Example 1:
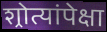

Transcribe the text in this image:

श्रोत्यांपेक्षा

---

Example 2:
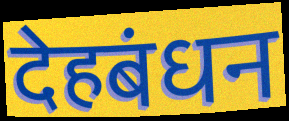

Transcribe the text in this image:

देहबंधन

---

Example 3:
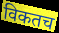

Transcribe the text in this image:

विकतच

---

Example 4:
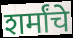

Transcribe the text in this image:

शर्मांचे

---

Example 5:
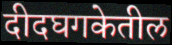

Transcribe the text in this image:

दीदघगकेतील